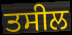
ਤਸੀਲ